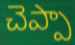
చెప్పా